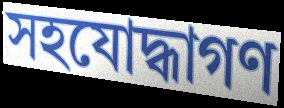
সহযোদ্ধাগণ